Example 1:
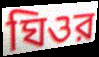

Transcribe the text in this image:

ঘিওর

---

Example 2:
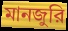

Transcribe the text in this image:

মানজুরি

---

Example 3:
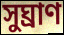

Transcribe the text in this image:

সুঘ্রাণ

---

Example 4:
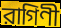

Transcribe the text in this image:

রাগিণী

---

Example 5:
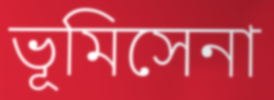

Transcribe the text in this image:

ভূমিসেনা